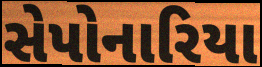
સેપોનારિયા